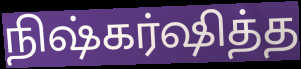
நிஷ்கர்ஷித்த